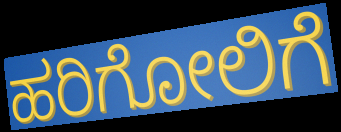
ಹರಿಗೋಲಿಗೆ